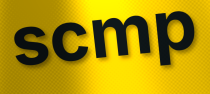
scmp